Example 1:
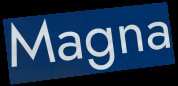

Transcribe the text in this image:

Magna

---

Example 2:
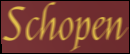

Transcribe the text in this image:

Schopen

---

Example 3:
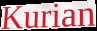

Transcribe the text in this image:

Kurian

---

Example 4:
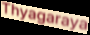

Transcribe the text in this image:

Thyagaraya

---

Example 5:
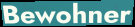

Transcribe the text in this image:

Bewohner